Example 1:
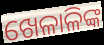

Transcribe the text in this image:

ଖେଳାଳିଙ୍କ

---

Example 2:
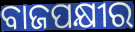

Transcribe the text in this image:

ବାଜପକ୍ଷୀର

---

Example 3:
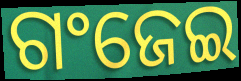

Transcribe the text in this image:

ଗଂଜେଇ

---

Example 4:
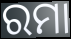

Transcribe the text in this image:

ରମା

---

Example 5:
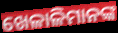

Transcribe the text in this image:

ଖେଳାଳିମାନଙ୍କ